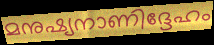
മനുഷ്യനാണിദ്ദേഹം